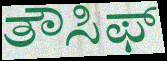
ತೌಸಿಫ್